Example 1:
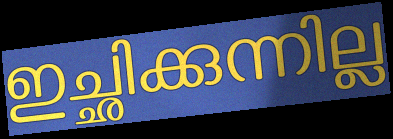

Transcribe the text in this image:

ഇച്ഛിക്കുന്നില്ല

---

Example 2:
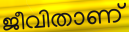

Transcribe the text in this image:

ജീവിതാണ്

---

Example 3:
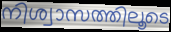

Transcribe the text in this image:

നിശ്വാസത്തിലൂടെ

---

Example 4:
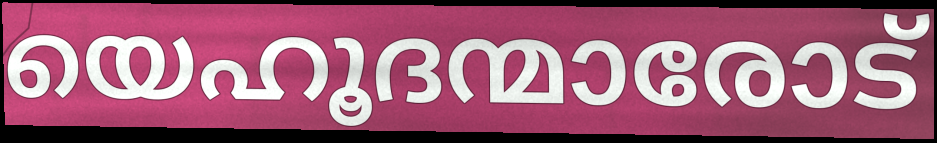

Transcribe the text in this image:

യെഹൂദന്മാരോട്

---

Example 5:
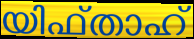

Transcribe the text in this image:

യിഫ്താഹ്